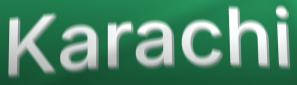
Karachi